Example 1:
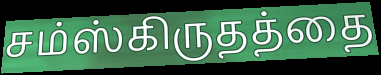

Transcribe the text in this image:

சம்ஸ்கிருதத்தை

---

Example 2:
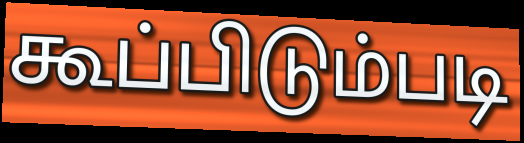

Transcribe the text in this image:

கூப்பிடும்படி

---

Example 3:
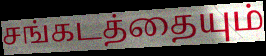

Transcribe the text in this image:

சங்கடத்தையும்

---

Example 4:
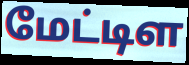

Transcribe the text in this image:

மேட்டிள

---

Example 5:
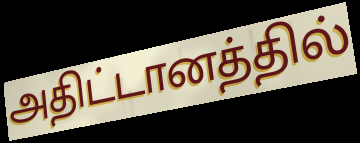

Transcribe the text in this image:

அதிட்டானத்தில்